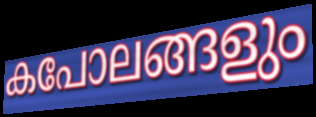
കപോലങ്ങളും